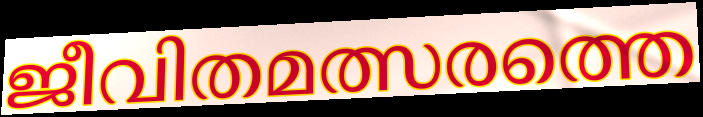
ജീവിതമത്സരത്തെ